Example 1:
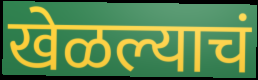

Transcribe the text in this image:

खेळल्याचं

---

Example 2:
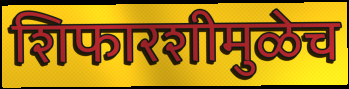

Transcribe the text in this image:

शिफारशीमुळेच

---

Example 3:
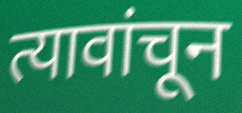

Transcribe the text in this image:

त्यावांचून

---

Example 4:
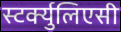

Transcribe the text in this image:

स्टर्क्युलिएसी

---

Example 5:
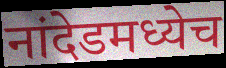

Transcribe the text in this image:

नांदेडमध्येच